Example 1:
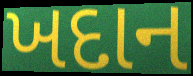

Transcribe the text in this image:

ખદાન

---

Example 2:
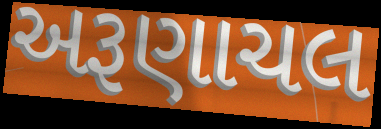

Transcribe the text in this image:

અરૂણાચલ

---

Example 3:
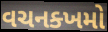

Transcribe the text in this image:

વચનક્ખમો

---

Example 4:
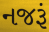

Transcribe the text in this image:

નજરૂં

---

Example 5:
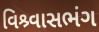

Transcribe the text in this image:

વિશ્ર્વાસભંગ